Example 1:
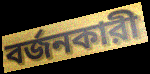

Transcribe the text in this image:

বর্জনকারী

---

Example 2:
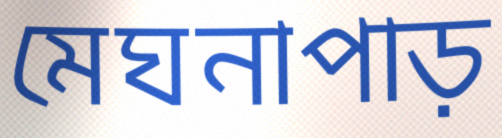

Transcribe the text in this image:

মেঘনাপাড়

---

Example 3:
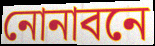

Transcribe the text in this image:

নোনাবনে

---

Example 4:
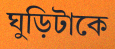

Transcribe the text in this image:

ঘুড়িটাকে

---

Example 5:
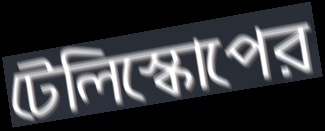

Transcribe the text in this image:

টেলিস্কোপের